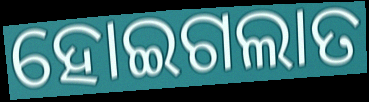
ହୋଇଗଲାତ